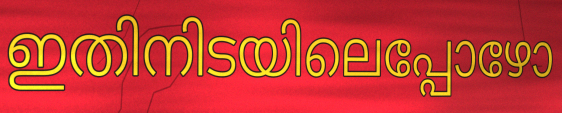
ഇതിനിടയിലെപ്പോഴോ